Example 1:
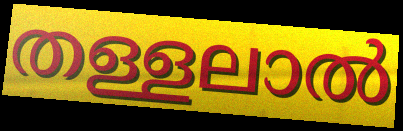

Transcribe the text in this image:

തള്ളലാൽ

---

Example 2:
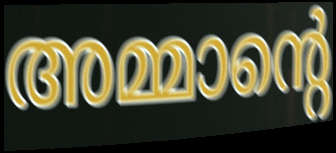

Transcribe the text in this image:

അമ്മാന്റെ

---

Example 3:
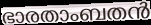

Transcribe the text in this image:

ഭാരതാംബതൻ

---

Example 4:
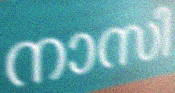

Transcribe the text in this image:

നാസി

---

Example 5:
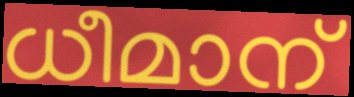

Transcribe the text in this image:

ധീമാന്